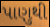
પાણુથી